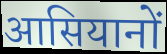
आसियानों